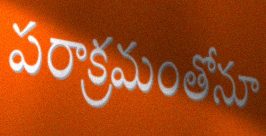
పరాక్రమంతోనూ